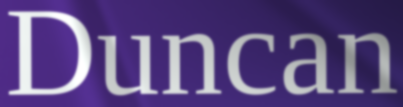
Duncan